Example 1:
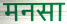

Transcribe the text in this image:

मनसा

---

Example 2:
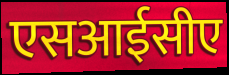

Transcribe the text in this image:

एसआईसीए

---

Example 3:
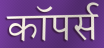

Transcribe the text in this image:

कॉपर्स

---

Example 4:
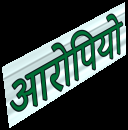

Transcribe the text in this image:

आरोपियो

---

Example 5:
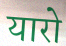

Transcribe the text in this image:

यारो